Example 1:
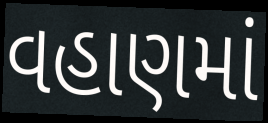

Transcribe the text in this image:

વહાણમાં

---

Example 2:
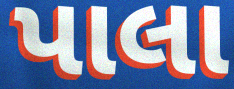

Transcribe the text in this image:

પાલા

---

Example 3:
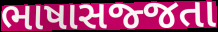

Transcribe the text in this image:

ભાષાસજ્જતા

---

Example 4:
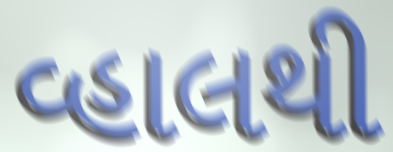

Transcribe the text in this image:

વ્હાલથી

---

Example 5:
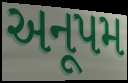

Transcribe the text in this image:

અનૂપમ